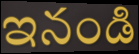
ఇనండి